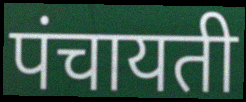
पंचायती